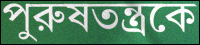
পুরুষতন্ত্রকে